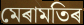
মেৰামতিৰ